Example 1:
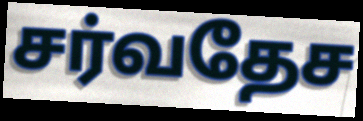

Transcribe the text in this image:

சர்வதேச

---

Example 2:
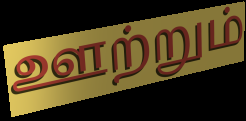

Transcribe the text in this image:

ஊற்றும்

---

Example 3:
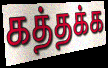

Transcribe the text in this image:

கத்தக்க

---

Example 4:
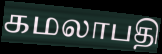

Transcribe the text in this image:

கமலாபதி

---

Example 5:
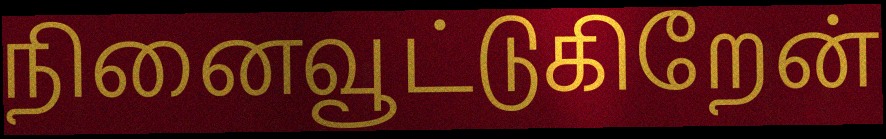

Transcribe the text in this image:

நினைவூட்டுகிறேன்